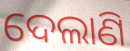
ଦେଲାଣି